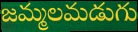
జమ్మలమడుగు